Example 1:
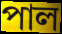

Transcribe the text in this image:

পাল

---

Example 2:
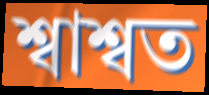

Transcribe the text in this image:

শ্বাশ্বত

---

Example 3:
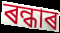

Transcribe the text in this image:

ৰন্ধাৰ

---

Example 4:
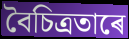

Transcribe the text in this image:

বৈচিত্ৰতাৰে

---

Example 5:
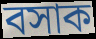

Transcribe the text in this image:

বসাক